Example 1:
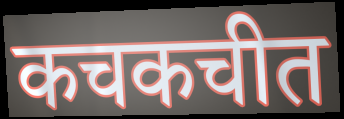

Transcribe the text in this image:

कचकचीत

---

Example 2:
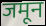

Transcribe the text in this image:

जमून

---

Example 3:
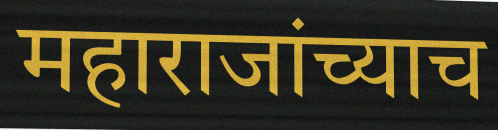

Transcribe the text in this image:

महाराजांच्याच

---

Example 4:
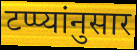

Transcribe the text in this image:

टप्प्यांनुसार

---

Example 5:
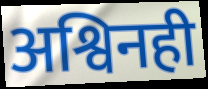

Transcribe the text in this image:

अश्विनही